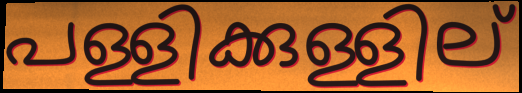
പള്ളിക്കുള്ളില്